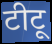
टीटू